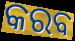
କରବ